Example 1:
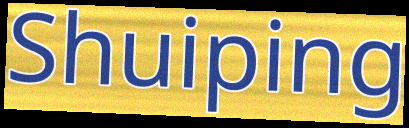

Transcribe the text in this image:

Shuiping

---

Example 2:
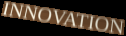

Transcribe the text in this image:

INNOVATION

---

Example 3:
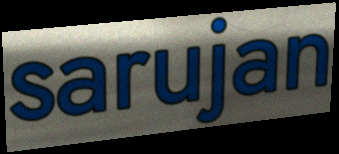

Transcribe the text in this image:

sarujan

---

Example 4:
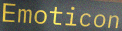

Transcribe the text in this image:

Emoticon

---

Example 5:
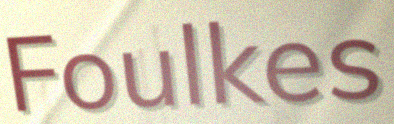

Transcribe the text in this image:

Foulkes